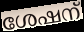
ശേഷന്